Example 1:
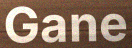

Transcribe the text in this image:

Gane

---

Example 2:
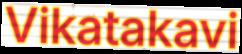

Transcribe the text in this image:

Vikatakavi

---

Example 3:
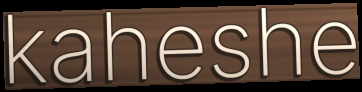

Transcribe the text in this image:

kaheshe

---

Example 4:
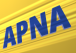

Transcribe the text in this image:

APNA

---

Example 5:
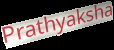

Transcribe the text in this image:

Prathyaksha